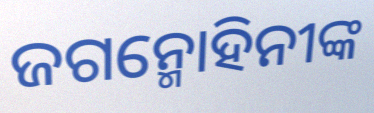
ଜଗନ୍ମୋହିନୀଙ୍କ